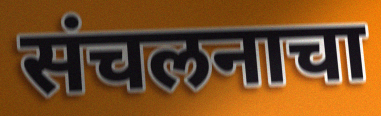
संचलनाचा